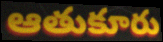
ఆతుకూరు